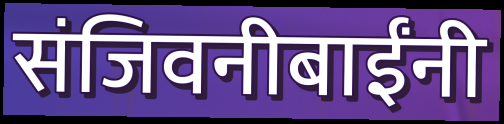
संजिवनीबाईंनी